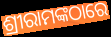
ଶ୍ରୀରାମଙ୍କଠାରେ